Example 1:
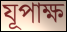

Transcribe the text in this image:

যূপাক্ষ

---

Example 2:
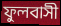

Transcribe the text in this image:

ফুলবাসী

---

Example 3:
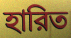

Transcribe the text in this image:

হারিত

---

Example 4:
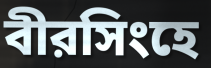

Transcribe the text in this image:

বীরসিংহে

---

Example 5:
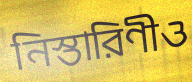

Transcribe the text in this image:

নিস্তারিণীও